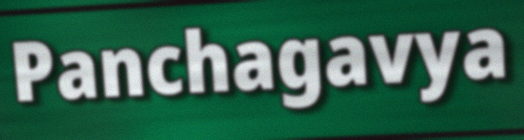
Panchagavya